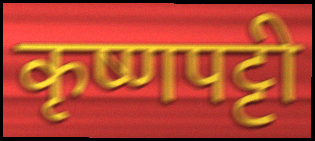
कृष्णपट्टी